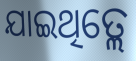
ଯାଇଥିତ୍ଲେ